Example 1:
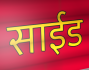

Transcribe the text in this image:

साईड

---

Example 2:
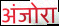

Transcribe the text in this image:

अंजोरा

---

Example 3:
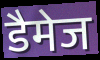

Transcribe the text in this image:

डैमेज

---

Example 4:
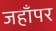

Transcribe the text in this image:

जहाँपर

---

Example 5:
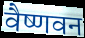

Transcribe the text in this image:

वैष्णवन